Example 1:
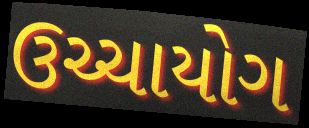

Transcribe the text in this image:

ઉચ્ચાયોગ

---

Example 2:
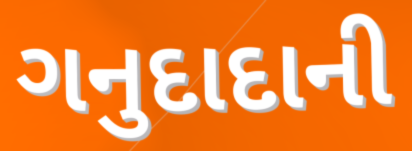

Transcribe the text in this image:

ગનુદાદાની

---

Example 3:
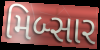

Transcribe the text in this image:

મિબ્સાર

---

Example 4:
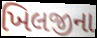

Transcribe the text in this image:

ખિલજીના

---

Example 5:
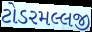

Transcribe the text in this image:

ટોડરમલ્લજી